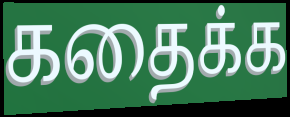
கதைக்க